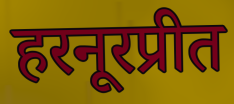
हरनूरप्रीत